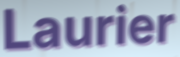
Laurier